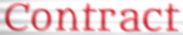
Contract